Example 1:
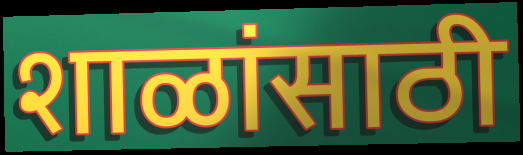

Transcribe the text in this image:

शाळांसाठी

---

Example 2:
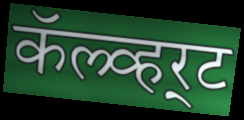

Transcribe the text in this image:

कॅल्व्हर्ट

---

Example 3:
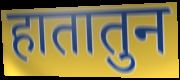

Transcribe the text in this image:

हातातुन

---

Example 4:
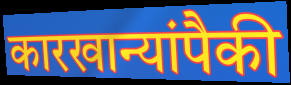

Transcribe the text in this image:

कारखान्यांपैकी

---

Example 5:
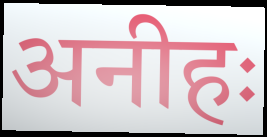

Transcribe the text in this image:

अनीहः